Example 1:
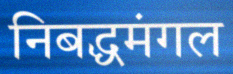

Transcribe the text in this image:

निबद्धमंगल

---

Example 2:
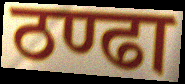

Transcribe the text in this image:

ठण्ढा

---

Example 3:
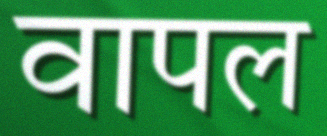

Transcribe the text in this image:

वापल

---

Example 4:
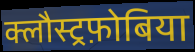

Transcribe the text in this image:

क्लौस्ट्रफ़ोबिया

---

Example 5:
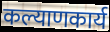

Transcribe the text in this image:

कल्याणकार्य